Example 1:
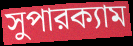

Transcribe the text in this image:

সুপারক্যাম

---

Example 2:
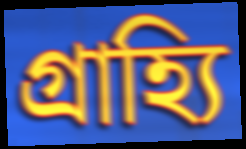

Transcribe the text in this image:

গ্রাহ্যি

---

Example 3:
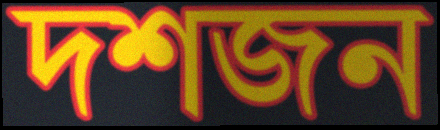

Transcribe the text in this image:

দশজন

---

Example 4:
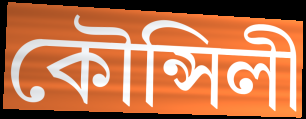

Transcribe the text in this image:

কৌন্সিলী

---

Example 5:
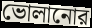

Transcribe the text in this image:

ভোলানোর